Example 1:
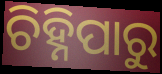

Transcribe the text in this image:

ଚିହ୍ନିପାରୁ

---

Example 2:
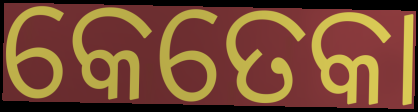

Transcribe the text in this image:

କେତେକା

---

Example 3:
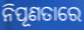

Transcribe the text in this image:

ନିପୂଣତାରେ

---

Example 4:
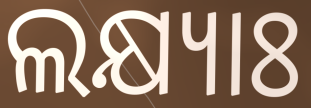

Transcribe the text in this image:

ଲକ୍ଷ୍ୟାଃ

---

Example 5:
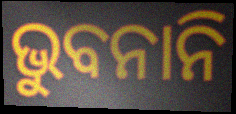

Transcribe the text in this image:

ଭୁବନାନି